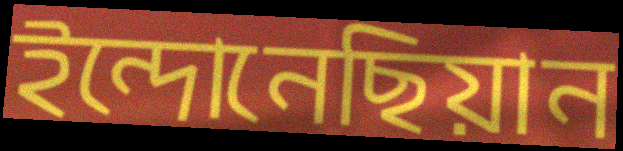
ইন্দোনেছিয়ান